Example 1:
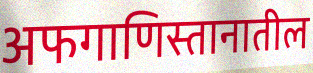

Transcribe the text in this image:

अफगाणिस्तानातील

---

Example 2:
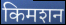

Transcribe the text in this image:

किमशन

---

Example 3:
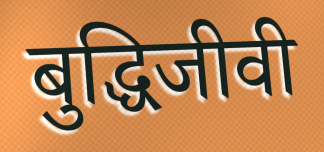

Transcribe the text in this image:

बुद्धिजीवी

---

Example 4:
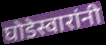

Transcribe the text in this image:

घोडेस्वारांनी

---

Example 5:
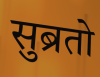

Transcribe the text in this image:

सुब्रतो